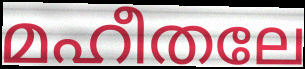
മഹീതലേ